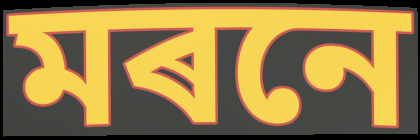
মৰনে